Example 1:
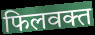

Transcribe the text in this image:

फिलवक्‍त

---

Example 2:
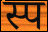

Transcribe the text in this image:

स्प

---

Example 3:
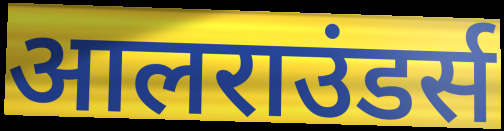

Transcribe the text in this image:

आलराउंडर्स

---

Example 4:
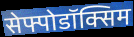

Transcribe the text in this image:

सेफ्पोडॉक्सिम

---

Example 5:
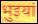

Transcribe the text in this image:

भुइयां